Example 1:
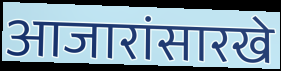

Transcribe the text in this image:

आजारांसारखे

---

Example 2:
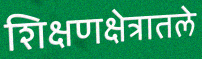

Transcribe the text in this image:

शिक्षणक्षेत्रातले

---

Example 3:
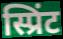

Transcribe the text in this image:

स्प्रिंट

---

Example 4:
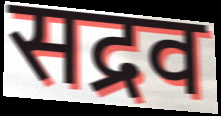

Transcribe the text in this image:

सद्रव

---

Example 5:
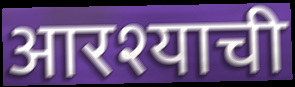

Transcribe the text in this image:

आरश्याची